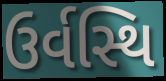
ઉર્વસ્થિ